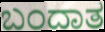
ಬಂದಾತ